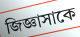
জিজ্ঞাসাকে